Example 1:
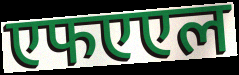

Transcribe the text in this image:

एफएएल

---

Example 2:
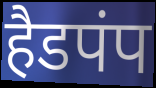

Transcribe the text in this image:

हैडपंप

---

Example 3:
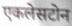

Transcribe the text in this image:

एकलेसटोन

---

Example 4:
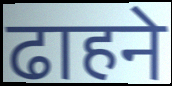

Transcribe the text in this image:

ढाहने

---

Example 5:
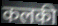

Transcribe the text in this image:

कलकी